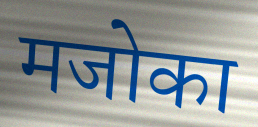
मजोका